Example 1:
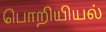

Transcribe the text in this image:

பொறியியல்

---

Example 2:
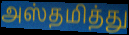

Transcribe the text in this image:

அஸ்தமித்து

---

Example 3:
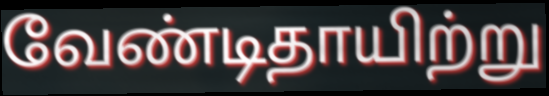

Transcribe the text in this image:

வேண்டிதாயிற்று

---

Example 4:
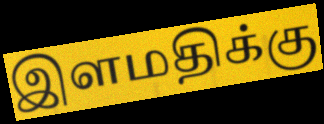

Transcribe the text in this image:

இளமதிக்கு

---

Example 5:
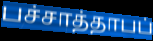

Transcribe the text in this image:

பச்சாத்தாபப்